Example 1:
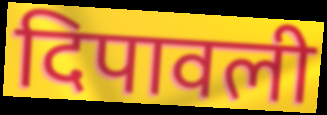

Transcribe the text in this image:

दिपावली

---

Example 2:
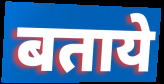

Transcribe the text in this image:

बताये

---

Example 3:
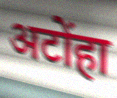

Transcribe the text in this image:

अटोंहा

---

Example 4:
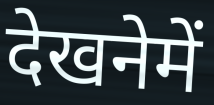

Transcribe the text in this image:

देखनेमें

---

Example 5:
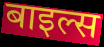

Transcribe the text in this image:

बाइल्स